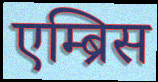
एम्ब्रिस